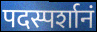
पदस्पर्शानं